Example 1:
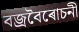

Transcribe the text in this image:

বজ্ৰবৈৰোচনী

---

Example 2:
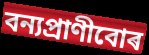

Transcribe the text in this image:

বন্যপ্ৰাণীবোৰ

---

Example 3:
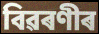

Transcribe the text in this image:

বিৱৰণীৰ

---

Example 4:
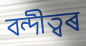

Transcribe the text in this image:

বন্দীত্বৰ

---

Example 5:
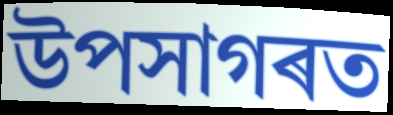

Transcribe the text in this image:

উপসাগৰত